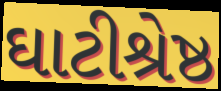
ઘાટીશ્રેષ્ઠ